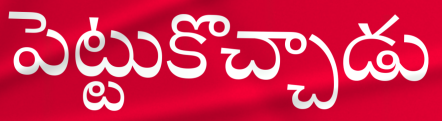
పెట్టుకొచ్చాడు